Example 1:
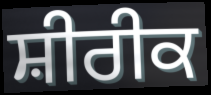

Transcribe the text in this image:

ਸ਼ੀਰੀਕ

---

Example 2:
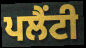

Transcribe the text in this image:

ਪਲੈਂਟੀ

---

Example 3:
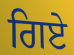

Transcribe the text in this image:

ਗਿਏ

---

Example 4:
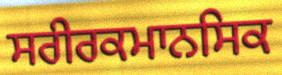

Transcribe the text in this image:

ਸਰੀਰਕਮਾਨਸਿਕ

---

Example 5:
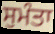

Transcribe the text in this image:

ਸੁਮੰਤਾ